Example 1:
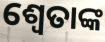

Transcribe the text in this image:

ଶ୍ଵେତାଙ୍କ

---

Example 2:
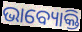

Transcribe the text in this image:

ଭାବ୍ୟୋକ୍ତି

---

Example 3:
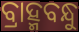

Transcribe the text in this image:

ବ୍ରାହ୍ମବନ୍ଧୁ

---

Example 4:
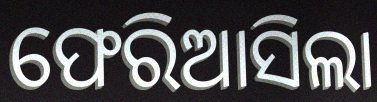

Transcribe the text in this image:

ଫେରିଆସିଲା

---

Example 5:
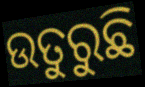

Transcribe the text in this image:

ଉତୁରୁଛି